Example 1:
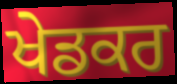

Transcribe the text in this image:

ਖੇਡਕਰ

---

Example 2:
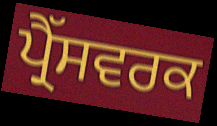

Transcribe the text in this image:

ਪ੍ਰੈੱਸਵਰਕ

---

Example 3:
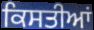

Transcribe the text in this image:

ਕਿਸਤੀਆਂ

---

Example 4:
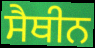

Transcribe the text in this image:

ਸੈਥੀਨ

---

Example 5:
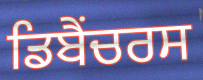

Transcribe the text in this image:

ਡਿਬੈਂਚਰਸ